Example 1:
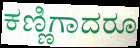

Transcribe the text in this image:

ಕಣ್ಣಿಗಾದರೂ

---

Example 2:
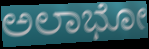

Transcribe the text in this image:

ಅಲಾಭೋ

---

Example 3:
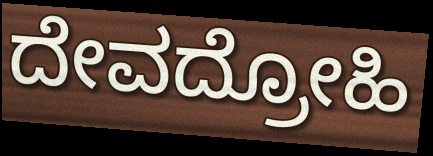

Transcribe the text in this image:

ದೇವದ್ರೋಹಿ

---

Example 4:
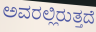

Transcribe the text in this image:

ಅವರಲ್ಲಿರುತ್ತದೆ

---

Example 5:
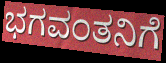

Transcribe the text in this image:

ಭಗವಂತನಿಗೆ